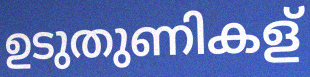
ഉടുതുണികള്